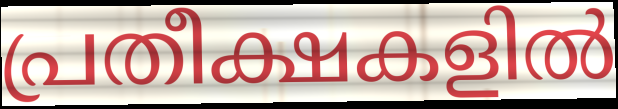
പ്രതീക്ഷകളിൽ